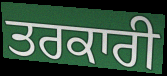
ਤਰਕਾਰੀ